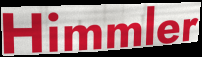
Himmler